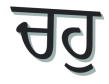
ਚਹੁ